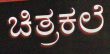
ಚಿತ್ರಕಲೆ